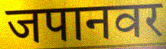
जपानवर